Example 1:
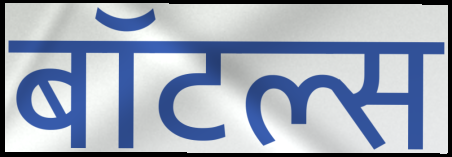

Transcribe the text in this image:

बॉटल्स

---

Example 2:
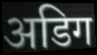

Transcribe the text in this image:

अडिग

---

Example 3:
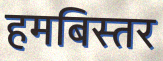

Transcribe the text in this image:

हमबिस्तर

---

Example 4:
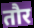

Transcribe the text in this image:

तौर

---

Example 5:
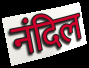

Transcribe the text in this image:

नंदिल